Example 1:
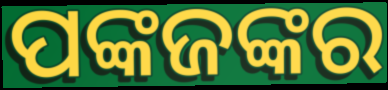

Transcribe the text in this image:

ପଙ୍କଜଙ୍କର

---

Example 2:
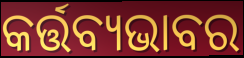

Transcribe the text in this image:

କର୍ତ୍ତବ୍ୟଭାବର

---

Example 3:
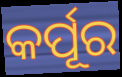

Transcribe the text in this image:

କର୍ପୂର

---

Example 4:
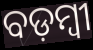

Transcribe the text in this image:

ବଡ଼ମ୍ବୀ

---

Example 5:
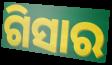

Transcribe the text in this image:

ଗିସାର